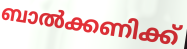
ബാൽക്കണിക്ക്